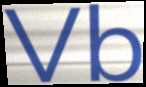
Vb